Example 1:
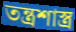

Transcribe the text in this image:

তন্ত্রশাস্ত্র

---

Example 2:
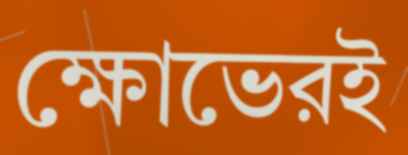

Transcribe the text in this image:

ক্ষোভেরই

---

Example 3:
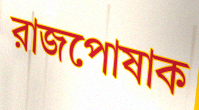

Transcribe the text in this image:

রাজপোষাক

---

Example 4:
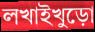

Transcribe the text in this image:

লখাইখুড়ো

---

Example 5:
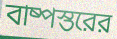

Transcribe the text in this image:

বাষ্পস্তরের